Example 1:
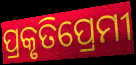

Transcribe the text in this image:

ପ୍ରକୃତିପ୍ରେମୀ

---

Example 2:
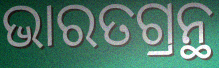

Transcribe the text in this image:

ଭାରତଗ୍ରନ୍ଥ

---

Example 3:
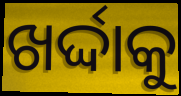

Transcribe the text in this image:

ଖର୍ଦ୍ଦାକୁ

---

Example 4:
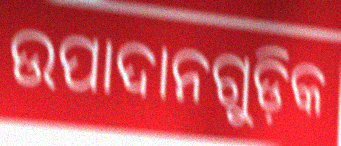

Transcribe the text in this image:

ଉପାଦାନଗୁଡ଼ିକ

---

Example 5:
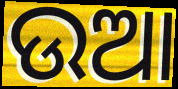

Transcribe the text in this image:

ଉଆ